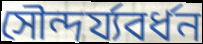
সৌন্দৰ্য্যবৰ্ধন